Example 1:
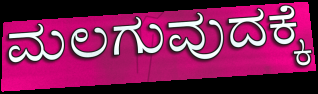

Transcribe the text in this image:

ಮಲಗುವುದಕ್ಕೆ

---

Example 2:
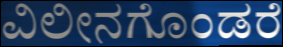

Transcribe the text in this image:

ವಿಲೀನಗೊಂಡರೆ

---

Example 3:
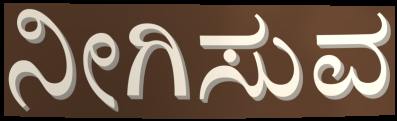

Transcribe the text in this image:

ನೀಗಿಸುವ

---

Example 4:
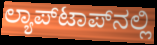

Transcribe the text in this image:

ಲ್ಯಾಪ್‌ಟಾಪ್‌ನಲ್ಲಿ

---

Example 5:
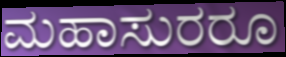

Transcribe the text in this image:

ಮಹಾಸುರರೂ